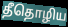
தீதொழிய